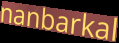
nanbarkal